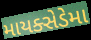
માયક્સેડેમા